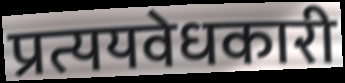
प्रत्ययवेधकारी